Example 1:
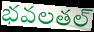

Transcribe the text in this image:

భవలతల్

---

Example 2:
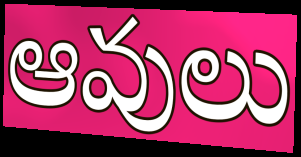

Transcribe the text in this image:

ఆవులు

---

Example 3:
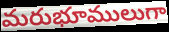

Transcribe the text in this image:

మరుభూములుగా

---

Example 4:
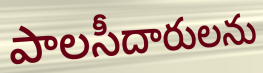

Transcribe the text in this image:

పాలసీదారులను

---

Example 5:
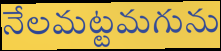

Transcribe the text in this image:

నేలమట్టమగును